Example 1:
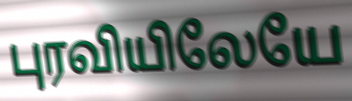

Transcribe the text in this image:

புரவியிலேயே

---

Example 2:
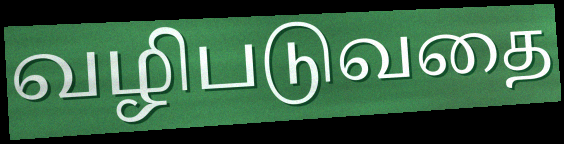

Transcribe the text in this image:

வழிபடுவதை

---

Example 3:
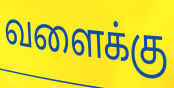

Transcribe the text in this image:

வளைக்கு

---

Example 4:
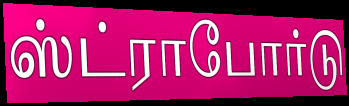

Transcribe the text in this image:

ஸ்ட்ராபோர்டு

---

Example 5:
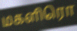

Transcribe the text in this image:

மகளிரொ